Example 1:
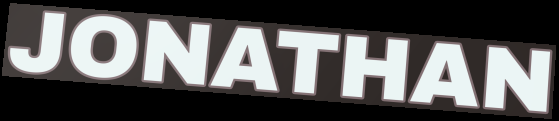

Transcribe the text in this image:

JONATHAN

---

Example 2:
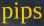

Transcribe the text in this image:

pips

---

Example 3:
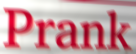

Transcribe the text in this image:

Prank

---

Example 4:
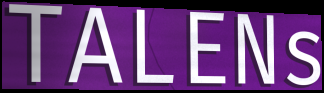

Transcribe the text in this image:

TALENs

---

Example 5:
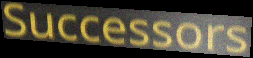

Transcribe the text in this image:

Successors